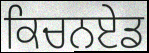
ਕਿਚਨਏਡ